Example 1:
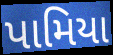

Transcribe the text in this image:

પામિયા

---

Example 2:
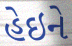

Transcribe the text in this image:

હેઇને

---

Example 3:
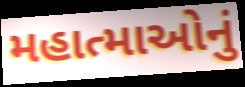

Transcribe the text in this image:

મહાત્માઓનું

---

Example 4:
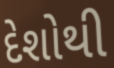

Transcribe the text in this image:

દેશોથી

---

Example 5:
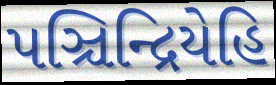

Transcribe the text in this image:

પઞ્ચિન્દ્રિયેહિ